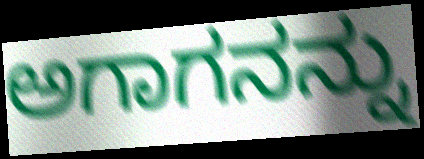
ಅಗಾಗನನ್ನು